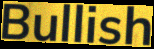
Bullish